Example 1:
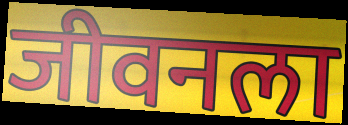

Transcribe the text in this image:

जीवनला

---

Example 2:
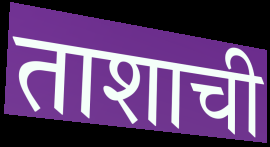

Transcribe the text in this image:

ताशाची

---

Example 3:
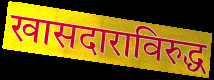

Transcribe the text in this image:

खासदाराविरुद्ध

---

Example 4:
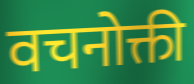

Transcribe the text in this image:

वचनोक्ती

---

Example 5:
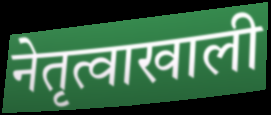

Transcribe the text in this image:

नेतृत्वाखाली